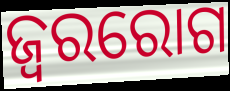
ଜ୍ୱରରୋଗ